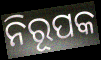
ନିରୂପକ